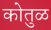
कोतुळ